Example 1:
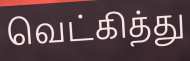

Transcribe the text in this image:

வெட்கித்து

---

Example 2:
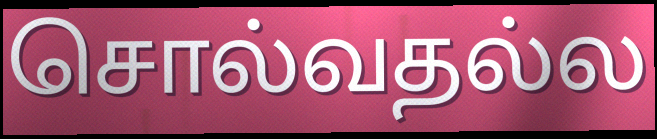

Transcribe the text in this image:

சொல்வதல்ல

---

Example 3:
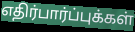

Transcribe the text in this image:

எதிர்பார்ப்புக்கள்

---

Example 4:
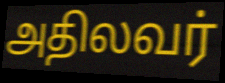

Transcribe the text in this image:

அதிலவர்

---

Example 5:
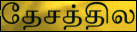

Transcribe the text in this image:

தேசத்தில